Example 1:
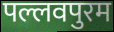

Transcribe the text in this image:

पल्लवपुरम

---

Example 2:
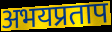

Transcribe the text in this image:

अभयप्रताप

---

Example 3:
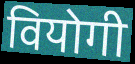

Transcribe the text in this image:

वियोगी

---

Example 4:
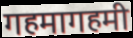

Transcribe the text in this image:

गहमागहमी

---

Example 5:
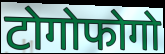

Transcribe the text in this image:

टोगोफोगो